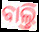
ବାଲ୍ତି